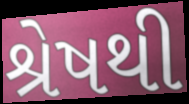
શ્રેષથી